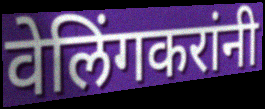
वेलिंगकरांनी